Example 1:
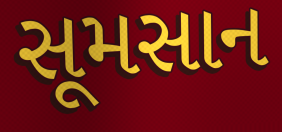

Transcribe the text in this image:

સૂમસાન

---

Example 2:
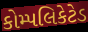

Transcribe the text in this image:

કોમ્પલિકેટેડ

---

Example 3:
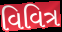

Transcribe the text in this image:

વિવિત્ર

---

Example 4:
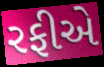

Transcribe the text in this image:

રફીએ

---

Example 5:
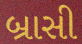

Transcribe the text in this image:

બ્રાસી